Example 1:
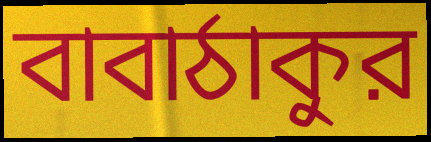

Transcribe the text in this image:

বাবাঠাকুর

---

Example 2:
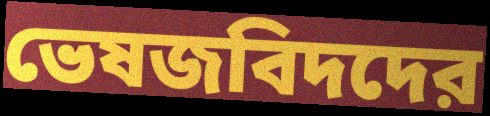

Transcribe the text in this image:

ভেষজবিদদের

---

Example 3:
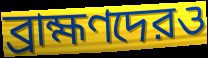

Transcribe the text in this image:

ব্রাহ্মণদেরও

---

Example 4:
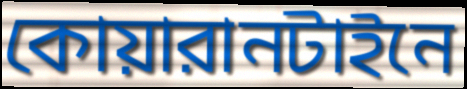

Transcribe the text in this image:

কোয়ারানটাইনে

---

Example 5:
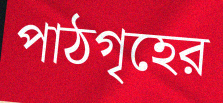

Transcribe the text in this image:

পাঠগৃহের